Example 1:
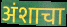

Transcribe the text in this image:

अंशाचा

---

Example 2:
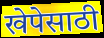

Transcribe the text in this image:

खेपेसाठी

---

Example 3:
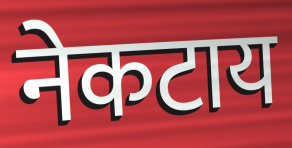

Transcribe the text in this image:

नेकटाय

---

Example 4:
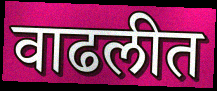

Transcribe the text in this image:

वाढलीत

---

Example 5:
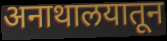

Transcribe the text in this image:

अनाथालयातून